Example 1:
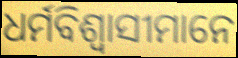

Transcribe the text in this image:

ଧର୍ମବିଶ୍ଵାସୀମାନେ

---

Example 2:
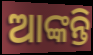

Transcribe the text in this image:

ଆଙ୍କନ୍ତି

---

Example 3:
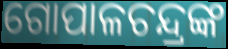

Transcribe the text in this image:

ଗୋପାଳଚନ୍ଦ୍ରଙ୍କ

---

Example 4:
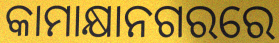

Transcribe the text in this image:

କାମାକ୍ଷାନଗରରେ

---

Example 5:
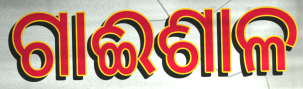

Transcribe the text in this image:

ଗାଈଶାଳ